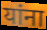
यांना